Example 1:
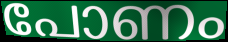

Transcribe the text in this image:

പോണം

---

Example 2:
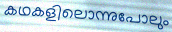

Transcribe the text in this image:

കഥകളിലൊന്നുപോലും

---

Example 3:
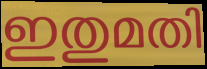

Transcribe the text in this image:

ഇതുമതി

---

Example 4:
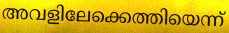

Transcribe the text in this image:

അവളിലേക്കെത്തിയെന്ന്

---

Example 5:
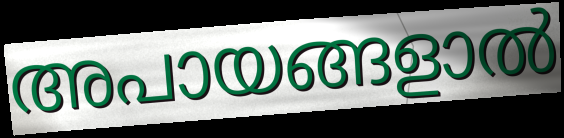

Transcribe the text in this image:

അപായങ്ങളാൽ